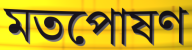
মতপোষণ